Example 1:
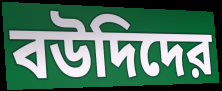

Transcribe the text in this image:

বউদিদের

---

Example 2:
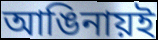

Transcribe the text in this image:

আঙিনায়ই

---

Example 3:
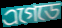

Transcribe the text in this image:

এগেডে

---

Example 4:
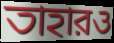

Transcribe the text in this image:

তাহারও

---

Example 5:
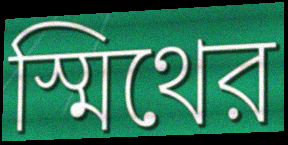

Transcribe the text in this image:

স্মিথের